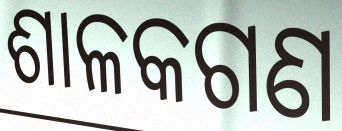
ଶାଳକଗଣ